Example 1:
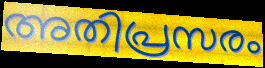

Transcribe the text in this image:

അതിപ്രസരം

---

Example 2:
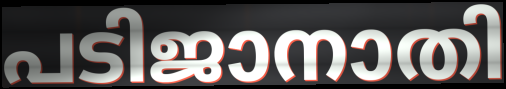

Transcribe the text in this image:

പടിജാനാതി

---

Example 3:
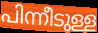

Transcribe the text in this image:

പിന്നീടുള്ള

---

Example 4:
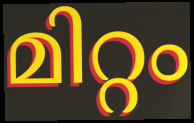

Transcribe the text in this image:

മിറ്റം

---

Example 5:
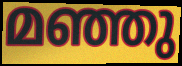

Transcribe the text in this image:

മഞ്ഞു